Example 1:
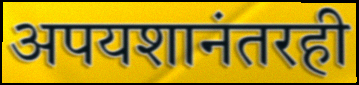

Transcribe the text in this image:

अपयशानंतरही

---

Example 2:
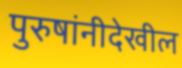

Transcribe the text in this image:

पुरुषांनीदेखील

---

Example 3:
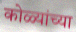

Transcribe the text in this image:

कोळ्यांच्या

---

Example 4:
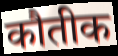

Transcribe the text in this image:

कौतीक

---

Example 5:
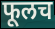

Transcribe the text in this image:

फूलच